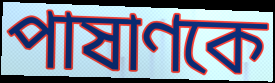
পাষাণকে